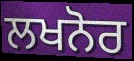
ਲਖਨੋਰ